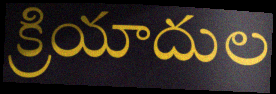
క్రియాదుల